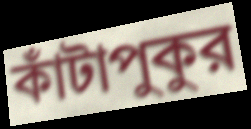
কাঁটাপুকুর